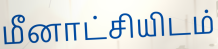
மீனாட்சியிடம்